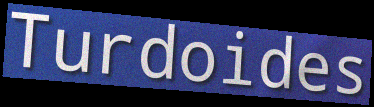
Turdoides